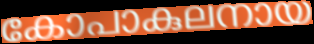
കോപാകുലനായ